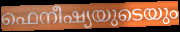
ഫെനീഷ്യയുടെയും